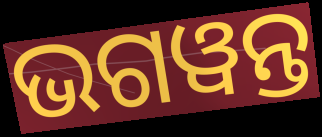
ଭଗୱନ୍ତ